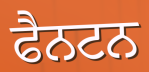
ਫੈਨਟਨ